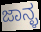
ಜಾನ್ಳ